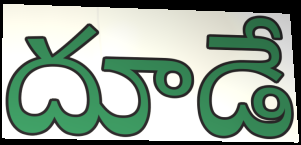
దూడే